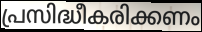
പ്രസിദ്ധീകരിക്കണം